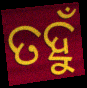
ତହୁଁ